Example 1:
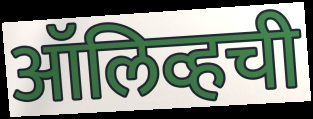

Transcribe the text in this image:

ऑलिव्हची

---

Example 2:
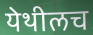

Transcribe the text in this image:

येथीलच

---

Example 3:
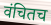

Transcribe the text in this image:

वंचितच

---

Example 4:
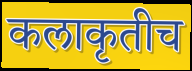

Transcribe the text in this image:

कलाकृतीच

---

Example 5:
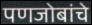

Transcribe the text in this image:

पणजोबांचे